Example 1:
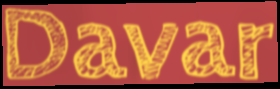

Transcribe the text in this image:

Davar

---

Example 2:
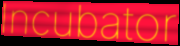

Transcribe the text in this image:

Incubator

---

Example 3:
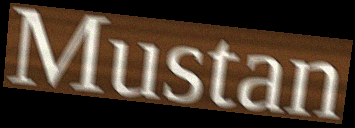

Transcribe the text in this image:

Mustan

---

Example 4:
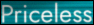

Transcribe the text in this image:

Priceless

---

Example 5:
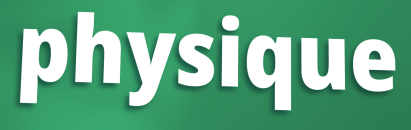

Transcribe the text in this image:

physique